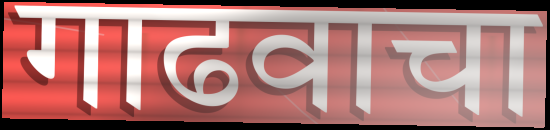
गाढवाचा